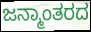
ಜನ್ಮಾಂತರದ